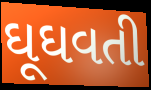
ઘૂઘવતી